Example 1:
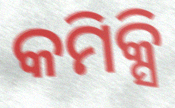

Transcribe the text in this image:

କମିକ୍ସି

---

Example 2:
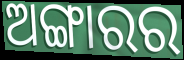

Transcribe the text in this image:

ଅଙ୍ଗାରର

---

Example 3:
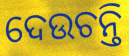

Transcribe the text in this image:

ଦେଉଚନ୍ତି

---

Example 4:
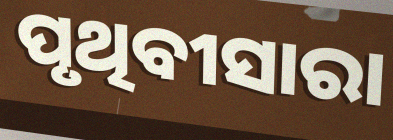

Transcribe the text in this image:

ପୃଥିବୀସାରା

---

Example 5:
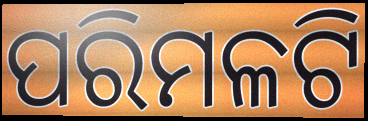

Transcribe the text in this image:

ପରିମଳଟି